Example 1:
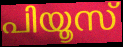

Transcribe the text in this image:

പിയൂസ്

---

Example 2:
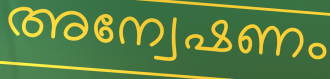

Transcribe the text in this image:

അന്വേഷണം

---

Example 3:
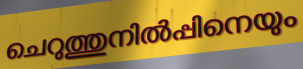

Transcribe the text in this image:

ചെറുത്തുനിൽപ്പിനെയും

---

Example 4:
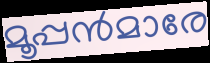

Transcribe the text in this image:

മൂപ്പൻമാരേ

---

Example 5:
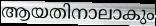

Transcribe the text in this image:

ആയതിനാലാകും